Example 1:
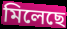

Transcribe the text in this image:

মিলেছে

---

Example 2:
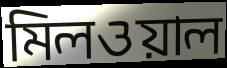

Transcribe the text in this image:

মিলওয়াল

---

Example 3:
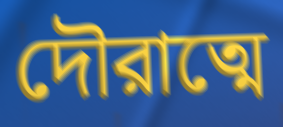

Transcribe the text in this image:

দৌরাত্মে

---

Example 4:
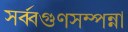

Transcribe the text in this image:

সর্ব্বগুণসম্পন্না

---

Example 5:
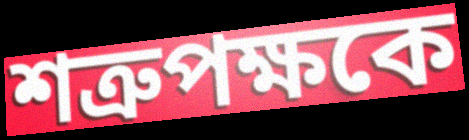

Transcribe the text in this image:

শত্রুপক্ষকে